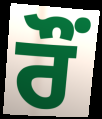
ਰੌਂ